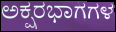
ಅಕ್ಷರಭಾಗಗಳ